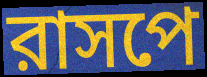
রাসপে